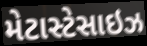
મેટાસ્ટેસાઇઝ